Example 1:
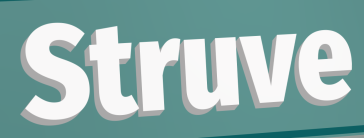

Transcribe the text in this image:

Struve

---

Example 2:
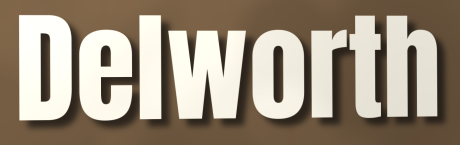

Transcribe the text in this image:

Delworth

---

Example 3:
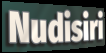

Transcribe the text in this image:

Nudisiri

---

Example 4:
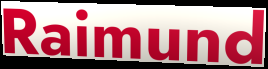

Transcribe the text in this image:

Raimund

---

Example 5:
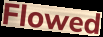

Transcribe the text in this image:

Flowed